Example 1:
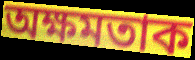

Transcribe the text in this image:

অক্ষমতাক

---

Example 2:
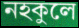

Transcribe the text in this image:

নহকুলে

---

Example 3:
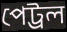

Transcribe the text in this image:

পেট্ৰল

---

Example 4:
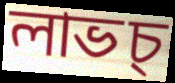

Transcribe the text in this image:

লাভচ্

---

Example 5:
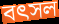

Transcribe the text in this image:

বৎসল